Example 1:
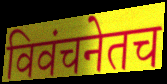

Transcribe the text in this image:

विवंचनेतच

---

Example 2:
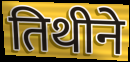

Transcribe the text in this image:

तिथीने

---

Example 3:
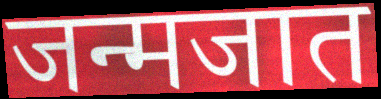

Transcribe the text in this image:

जन्मजात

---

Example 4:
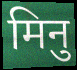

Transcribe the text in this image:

मिनु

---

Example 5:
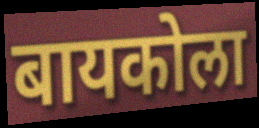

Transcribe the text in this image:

बायकोला